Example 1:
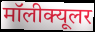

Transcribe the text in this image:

मॉलीक्यूलर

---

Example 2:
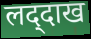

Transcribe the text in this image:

लद्‌दाख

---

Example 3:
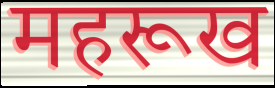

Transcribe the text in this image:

महरूख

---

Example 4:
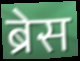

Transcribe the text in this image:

ब्रेस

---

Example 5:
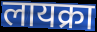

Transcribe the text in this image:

लायक्रा